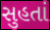
સુહતાં